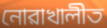
নোৱাখালীত